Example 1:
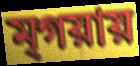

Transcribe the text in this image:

মৃগয়ায়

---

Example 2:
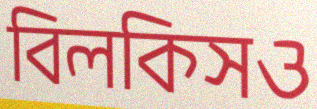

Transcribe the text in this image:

বিলকিসও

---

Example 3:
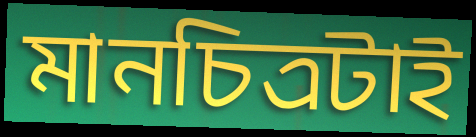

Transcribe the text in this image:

মানচিত্রটাই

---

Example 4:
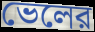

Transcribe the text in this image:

ভেলের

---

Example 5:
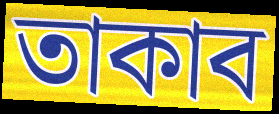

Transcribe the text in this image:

তাকাব